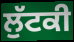
ਲੁੱਟਕੀ